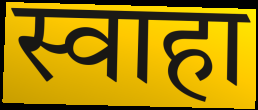
स्‍वाहा